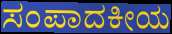
ಸಂಪಾದಕೀಯ